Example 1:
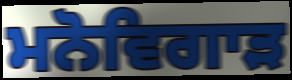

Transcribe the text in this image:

ਮਨੋਵਿਗਾੜ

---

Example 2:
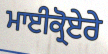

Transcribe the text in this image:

ਮਾਈਕ੍ਰੋਏਰੇ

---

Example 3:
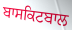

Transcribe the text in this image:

ਬਾਸਕਿਟਬਾਲ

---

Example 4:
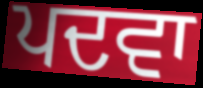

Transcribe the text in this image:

ਪਦਵਾ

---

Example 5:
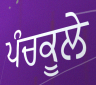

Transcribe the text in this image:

ਪੰਚਕੂਲੇ